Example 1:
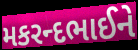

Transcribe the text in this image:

મકરન્દભાઈને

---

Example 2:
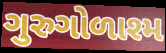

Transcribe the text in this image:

ગુરુગોળાશ્મ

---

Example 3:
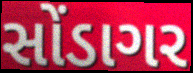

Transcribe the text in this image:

સોંડાગર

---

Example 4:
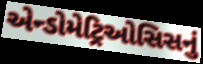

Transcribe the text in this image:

એન્ડોમેટ્રિઓસિસનું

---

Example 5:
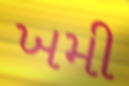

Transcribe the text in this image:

ખમી